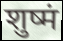
शुष्मं